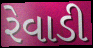
રેવાડી